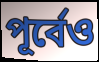
পূৰ্বেও